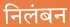
निलंबन